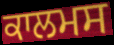
ਕਾਲਮਸ